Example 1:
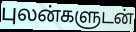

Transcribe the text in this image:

புலன்களுடன்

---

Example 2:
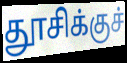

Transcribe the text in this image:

தூசிக்குச்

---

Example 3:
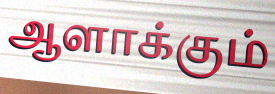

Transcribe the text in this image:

ஆளாக்கும்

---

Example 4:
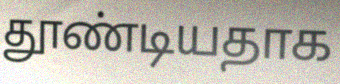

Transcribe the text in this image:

தூண்டியதாக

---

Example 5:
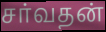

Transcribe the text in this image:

சர்வதன்